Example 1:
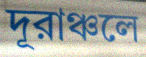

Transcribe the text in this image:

দূরাঞ্চলে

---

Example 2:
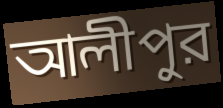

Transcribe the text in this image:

আলীপুর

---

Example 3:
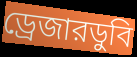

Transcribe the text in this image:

ড্রেজারডুবি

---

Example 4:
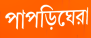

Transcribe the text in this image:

পাপড়িঘেরা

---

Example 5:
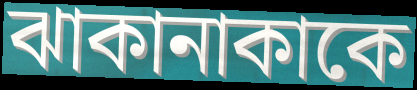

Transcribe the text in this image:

ঝাকানাকাকে